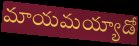
మాయమయ్యాడో